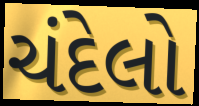
ચંદેલો